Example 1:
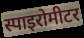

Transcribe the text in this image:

स्पाइरोमीटर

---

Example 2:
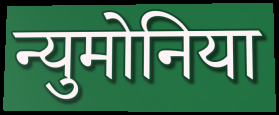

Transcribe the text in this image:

न्युमोनिया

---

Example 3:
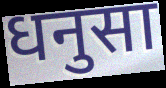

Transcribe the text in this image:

धनुसा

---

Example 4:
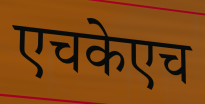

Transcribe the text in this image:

एचकेएच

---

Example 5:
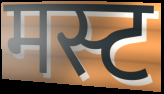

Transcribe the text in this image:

मस्‍ट